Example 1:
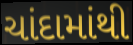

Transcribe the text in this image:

ચાંદામાંથી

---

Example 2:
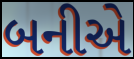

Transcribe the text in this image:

બનીએ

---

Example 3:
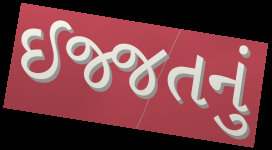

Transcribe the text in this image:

ઈજ્જતનું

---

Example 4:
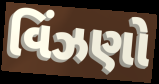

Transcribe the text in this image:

વિંઝણો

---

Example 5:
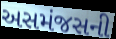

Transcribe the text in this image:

અસમંજસની